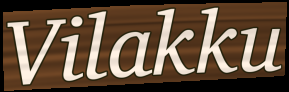
Vilakku